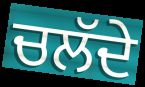
ਚਲੱਦੇ